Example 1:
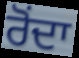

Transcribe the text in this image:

ਰੋਂਦਾ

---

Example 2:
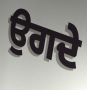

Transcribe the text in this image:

ਉਗਦੇ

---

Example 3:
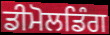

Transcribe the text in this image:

ਡੀਮੋਲਡਿੰਗ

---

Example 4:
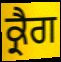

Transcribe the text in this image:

ਕ੍ਰੈਗ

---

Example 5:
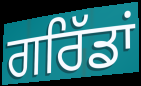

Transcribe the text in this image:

ਗਰਿੱਡਾਂ